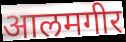
आलमगीर